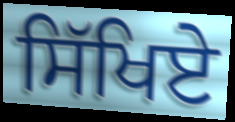
ਸਿੱਖਿਏ